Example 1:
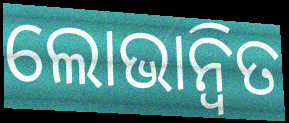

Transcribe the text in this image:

ଲୋଭାନ୍ୱିତ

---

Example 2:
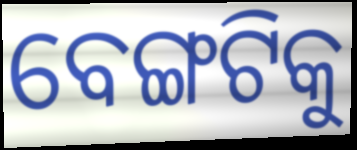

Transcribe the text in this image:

ବେଙ୍ଗଟିକୁ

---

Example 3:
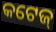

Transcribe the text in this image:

କଟେଜ୍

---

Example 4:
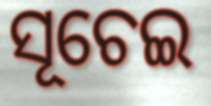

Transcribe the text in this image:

ସୂଚେଇ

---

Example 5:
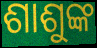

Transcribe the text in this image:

ଶାଶୁଙ୍କ